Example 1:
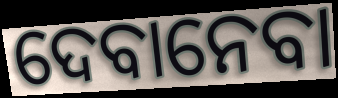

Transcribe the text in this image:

ଦେବାନେବା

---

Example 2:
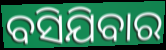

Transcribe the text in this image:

ବସିଯିବାର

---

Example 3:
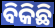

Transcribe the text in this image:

ବିକିଛି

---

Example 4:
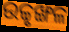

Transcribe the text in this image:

ଉଚ୍ଚୃଙ୍ଖଳ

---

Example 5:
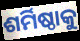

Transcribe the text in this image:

ଶର୍ମିଷ୍ଠାକୁ